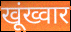
खूंख्वार